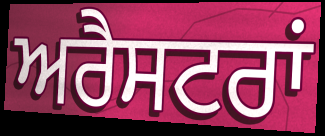
ਅਰੈਸਟਰਾਂ